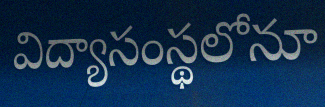
విద్యాసంస్థలోనూ